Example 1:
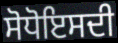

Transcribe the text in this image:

ਸੋਧੋਇਸਦੀ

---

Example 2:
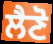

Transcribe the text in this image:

ਲੈਣੋ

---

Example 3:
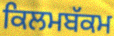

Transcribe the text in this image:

ਕਿਲਮਬੱਕਮ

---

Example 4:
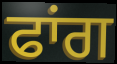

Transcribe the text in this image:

ਫਾਂਗ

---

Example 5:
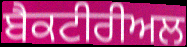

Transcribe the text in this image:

ਬੈਕਟੀਰੀਅਲ